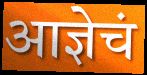
आज्ञेचं